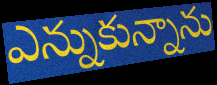
ఎన్నుకున్నాను